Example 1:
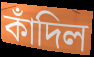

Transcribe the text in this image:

কাঁদিল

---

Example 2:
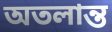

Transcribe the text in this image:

অতলান্ত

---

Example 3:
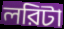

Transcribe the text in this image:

লরিটা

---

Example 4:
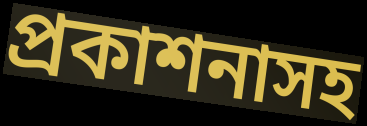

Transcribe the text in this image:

প্রকাশনাসহ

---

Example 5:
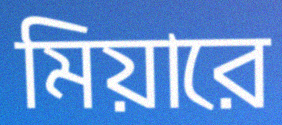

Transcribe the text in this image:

মিয়ারে